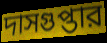
দাসগুপ্তার